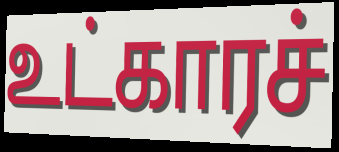
உட்காரச்